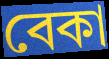
বেকা